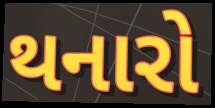
થનારો